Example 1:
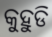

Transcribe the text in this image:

କୁହୁଡି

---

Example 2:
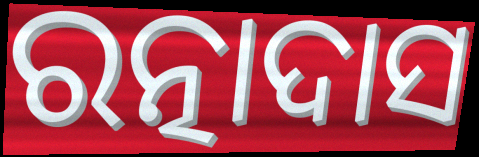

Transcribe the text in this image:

ରତ୍ନାଦାସ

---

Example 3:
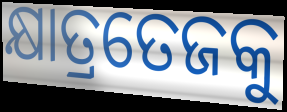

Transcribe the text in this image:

କ୍ଷାତ୍ରତେଜକୁ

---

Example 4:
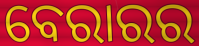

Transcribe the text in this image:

ବେରାରର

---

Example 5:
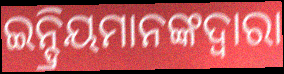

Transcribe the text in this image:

ଇନ୍ଦ୍ରିୟମାନଙ୍କଦ୍ୱାରା